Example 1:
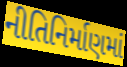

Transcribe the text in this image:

નીતિનિર્માણમાં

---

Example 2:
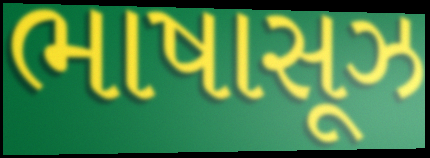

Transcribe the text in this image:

ભાષાસૂઝ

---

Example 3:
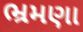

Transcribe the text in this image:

ભ્રમણા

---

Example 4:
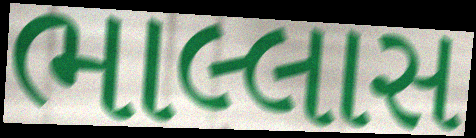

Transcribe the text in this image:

ભાલ્લાસ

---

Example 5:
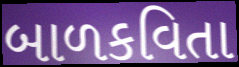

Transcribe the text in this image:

બાળકવિતા